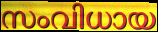
സംവിധായ